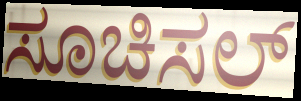
ಸೂಚಿಸಲ್